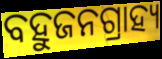
ବହୁଜନଗ୍ରାହ୍ୟ